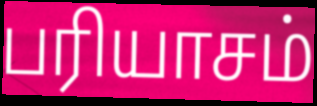
பரியாசம்